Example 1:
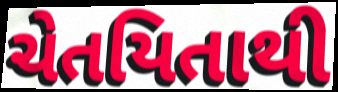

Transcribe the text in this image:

ચેતયિતાથી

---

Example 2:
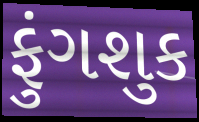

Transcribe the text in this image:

ફુંગશુક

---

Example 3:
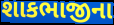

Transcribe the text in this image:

શાકભાજીના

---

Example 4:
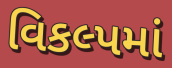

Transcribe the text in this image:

વિકલ્પમાં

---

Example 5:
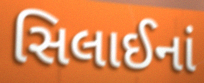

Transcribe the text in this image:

સિલાઈનાં